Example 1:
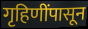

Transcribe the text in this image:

गृहिणींपासून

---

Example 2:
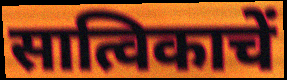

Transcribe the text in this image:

सात्विकाचें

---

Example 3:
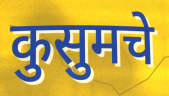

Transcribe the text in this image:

कुसुमचे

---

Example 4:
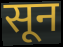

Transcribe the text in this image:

सून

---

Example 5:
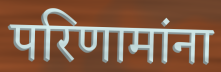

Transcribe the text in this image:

परिणामांना